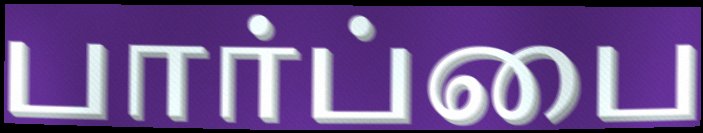
பார்ப்பை